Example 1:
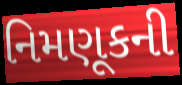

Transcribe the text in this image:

નિમણૂકની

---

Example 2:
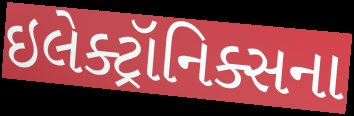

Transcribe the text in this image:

ઇલેક્ટ્રૉનિક્સના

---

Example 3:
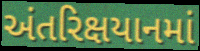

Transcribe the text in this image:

અંતરિક્ષયાનમાં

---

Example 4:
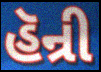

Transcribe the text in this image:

હૅન્રી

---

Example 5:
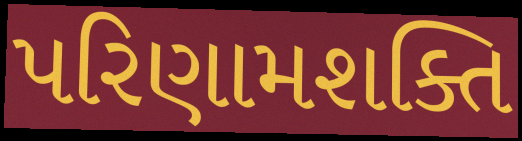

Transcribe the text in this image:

પરિણામશક્તિ